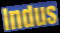
Indus